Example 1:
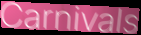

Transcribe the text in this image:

Carnivals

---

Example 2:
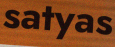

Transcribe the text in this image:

satyas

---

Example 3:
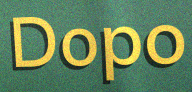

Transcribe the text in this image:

Dopo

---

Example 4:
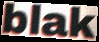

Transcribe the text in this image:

blak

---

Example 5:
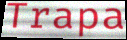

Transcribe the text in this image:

Trapa